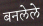
बनलेले